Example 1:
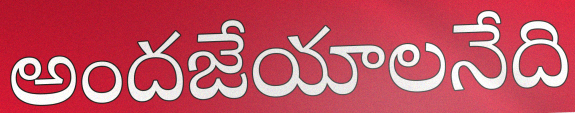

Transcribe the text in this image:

అందజేయాలనేది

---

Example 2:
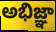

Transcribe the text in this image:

అభిజ్ఞా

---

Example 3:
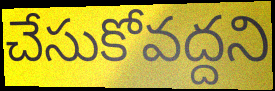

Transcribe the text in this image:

చేసుకోవద్దని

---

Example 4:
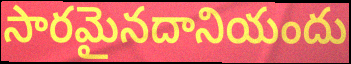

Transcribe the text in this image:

సారమైనదానియందు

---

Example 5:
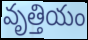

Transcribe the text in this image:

వృత్తియం